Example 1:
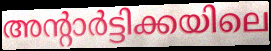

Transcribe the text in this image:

അന്റാർട്ടിക്കയിലെ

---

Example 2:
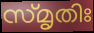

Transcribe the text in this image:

സ്മൃതിഃ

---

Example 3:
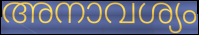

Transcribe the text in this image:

അനാവശ്യം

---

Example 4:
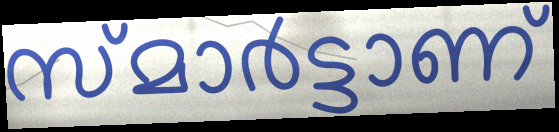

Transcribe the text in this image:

സ്മാർട്ടാണ്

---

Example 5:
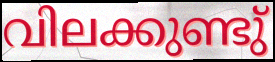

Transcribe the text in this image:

വിലക്കുണ്ടു്